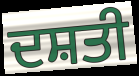
ਦਸ਼ਤੀ